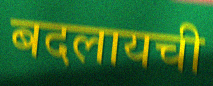
बदलायची